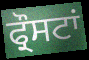
ਫ੍ਰੌਸਟਾਂ